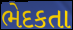
ભેદકતા